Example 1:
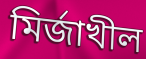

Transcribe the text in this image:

মির্জাখীল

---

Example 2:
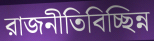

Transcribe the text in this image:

রাজনীতিবিচ্ছিন্ন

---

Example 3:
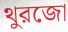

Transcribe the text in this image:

থুরজো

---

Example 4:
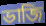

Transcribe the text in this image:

ভাজি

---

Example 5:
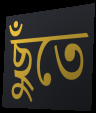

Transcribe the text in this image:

ছুঁতে